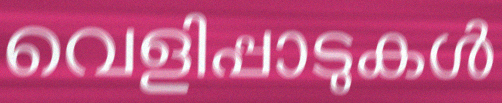
വെളിപ്പാടുകൾ